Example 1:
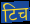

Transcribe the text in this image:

टिच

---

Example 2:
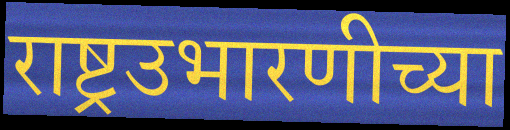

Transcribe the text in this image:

राष्ट्रउभारणीच्या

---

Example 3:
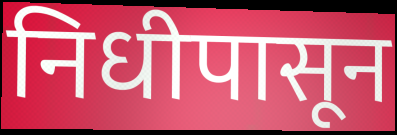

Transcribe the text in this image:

निधीपासून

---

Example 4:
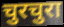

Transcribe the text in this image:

चुरचुरा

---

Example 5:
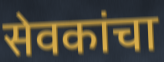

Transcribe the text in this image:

सेवकांचा